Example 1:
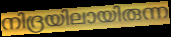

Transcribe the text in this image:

നിദ്രയിലായിരുന്ന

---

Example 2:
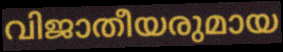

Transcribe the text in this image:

വിജാതീയരുമായ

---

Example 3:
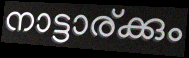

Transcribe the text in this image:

നാട്ടാര്ക്കും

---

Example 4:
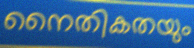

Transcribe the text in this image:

നൈതികതയും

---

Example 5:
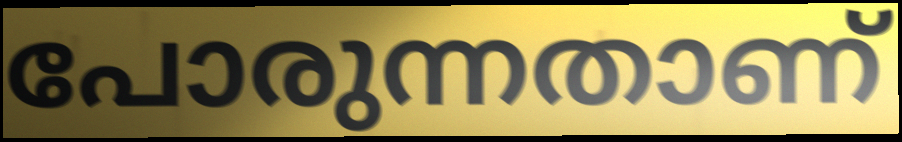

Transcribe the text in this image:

പോരുന്നതാണ്